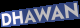
DHAWAN